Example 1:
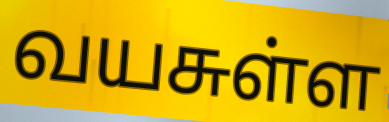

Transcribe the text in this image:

வயசுள்ள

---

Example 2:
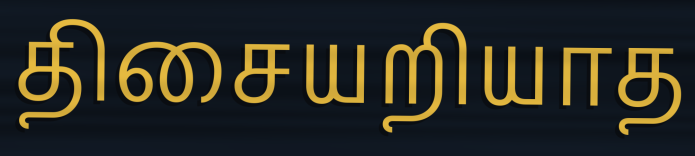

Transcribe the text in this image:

திசையறியாத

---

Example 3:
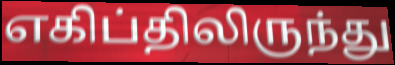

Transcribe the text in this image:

எகிப்திலிருந்து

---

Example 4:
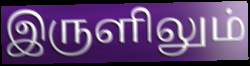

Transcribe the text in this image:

இருளிலும்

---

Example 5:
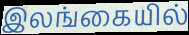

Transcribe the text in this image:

இலங்கையில்